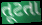
તૂટતા